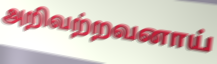
அறிவற்றவனாய்